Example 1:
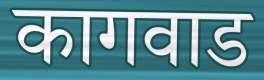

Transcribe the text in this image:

कागवाड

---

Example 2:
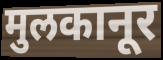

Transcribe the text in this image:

मुलकानूर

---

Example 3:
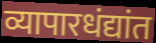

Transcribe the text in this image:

व्यापारधंद्यांत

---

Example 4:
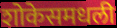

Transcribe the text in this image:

शोकेसमधली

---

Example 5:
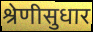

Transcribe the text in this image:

श्रेणीसुधार